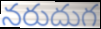
నరుదుగ